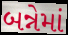
બન્નેમાં